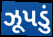
ઝૂપડું